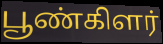
பூண்கிளர்